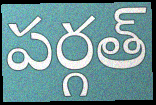
పర్గత్